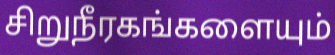
சிறுநீரகங்களையும்